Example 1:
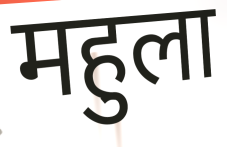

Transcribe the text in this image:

महुला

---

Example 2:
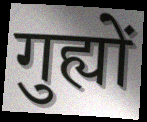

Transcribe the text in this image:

गुह्यों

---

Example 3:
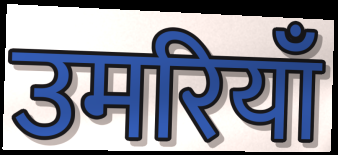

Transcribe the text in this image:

उमरियाँ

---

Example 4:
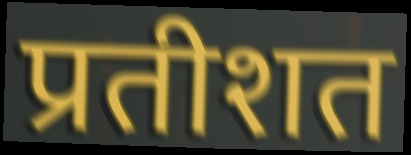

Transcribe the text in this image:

प्रतीशत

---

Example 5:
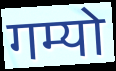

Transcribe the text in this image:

गम्यो